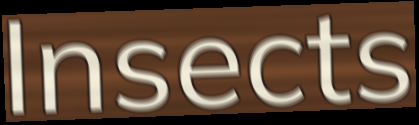
Insects